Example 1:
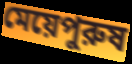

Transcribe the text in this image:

মেয়েপুরুষ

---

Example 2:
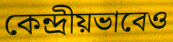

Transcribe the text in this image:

কেন্দ্রীয়ভাবেও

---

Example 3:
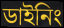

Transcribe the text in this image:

ডাইনিং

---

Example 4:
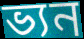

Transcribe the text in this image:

ভ্যন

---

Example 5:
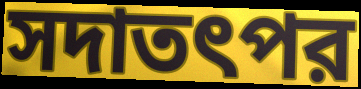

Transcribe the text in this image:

সদাতৎপর